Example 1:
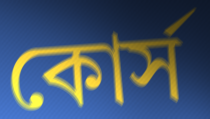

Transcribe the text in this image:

কোর্স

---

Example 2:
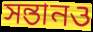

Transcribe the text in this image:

সন্তানও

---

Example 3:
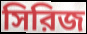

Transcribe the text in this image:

সিরিজ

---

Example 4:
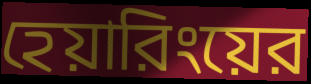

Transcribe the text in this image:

হেয়ারিংয়ের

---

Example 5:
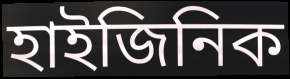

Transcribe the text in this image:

হাইজিনিক